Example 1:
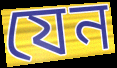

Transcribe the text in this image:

যেন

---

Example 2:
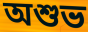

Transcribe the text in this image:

অশুভ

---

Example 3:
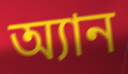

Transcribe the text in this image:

অ্যান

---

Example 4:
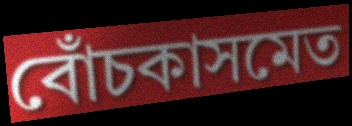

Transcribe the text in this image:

বোঁচকাসমেত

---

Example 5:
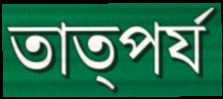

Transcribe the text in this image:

তাত্পর্য